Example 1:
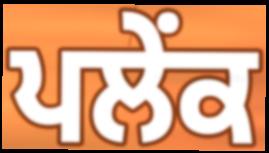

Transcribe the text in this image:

ਪਲੇਂਕ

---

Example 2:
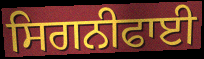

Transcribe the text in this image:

ਸਿਗਨੀਫਾਈ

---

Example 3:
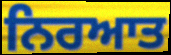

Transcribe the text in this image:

ਨਿਰਆਤ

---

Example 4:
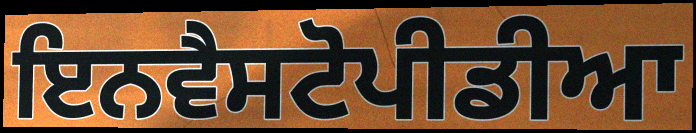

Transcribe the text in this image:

ਇਨਵੈਸਟੋਪੀਡੀਆ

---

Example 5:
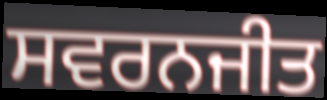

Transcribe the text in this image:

ਸਵਰਨਜੀਤ